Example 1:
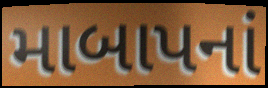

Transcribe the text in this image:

માબાપનાં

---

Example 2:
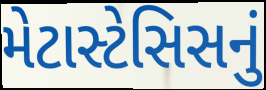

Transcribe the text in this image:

મેટાસ્ટેસિસનું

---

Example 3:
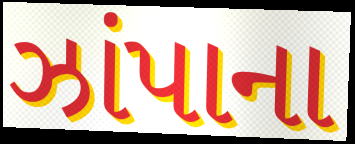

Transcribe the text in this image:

ઝાંપાના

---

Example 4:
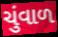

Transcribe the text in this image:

ચુંવાળ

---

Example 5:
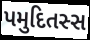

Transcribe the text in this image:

પમુદિતસ્સ